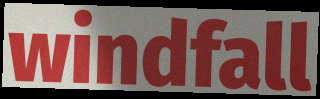
windfall